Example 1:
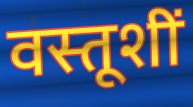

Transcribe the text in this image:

वस्तूशीं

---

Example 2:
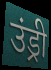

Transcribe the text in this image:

उंड्री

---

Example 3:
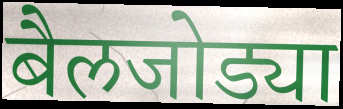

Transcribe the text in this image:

बैलजोड्या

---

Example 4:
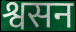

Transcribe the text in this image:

श्वसन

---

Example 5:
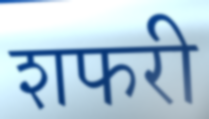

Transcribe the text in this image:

शफरी